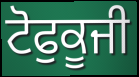
ਟੋਫੁਕੂਜੀ